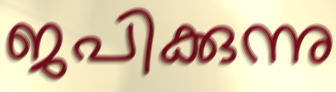
ജപിക്കുന്നു